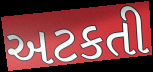
અટકતી